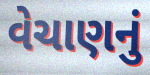
વેચાણનું